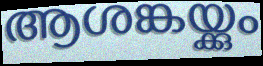
ആശങ്കയ്ക്കും